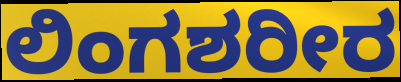
ಲಿಂಗಶರೀರ